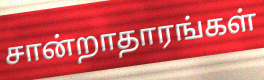
சான்றாதாரங்கள்